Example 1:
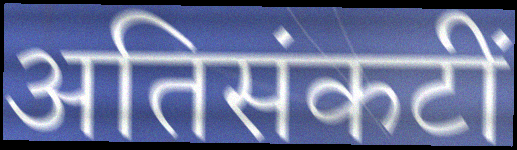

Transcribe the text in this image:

अतिसंकटीं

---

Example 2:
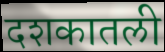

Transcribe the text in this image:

दशकातली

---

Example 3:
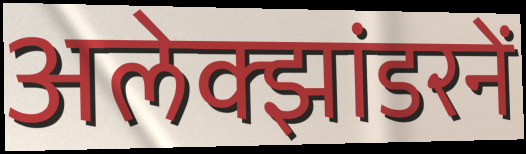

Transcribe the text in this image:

अलेक्झांडरनें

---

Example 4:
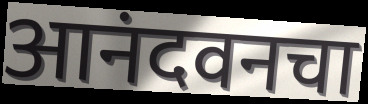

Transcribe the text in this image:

आनंदवनचा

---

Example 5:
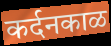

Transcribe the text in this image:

कर्दनकाळ